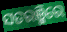
ସତରଞ୍ଜିରେ